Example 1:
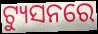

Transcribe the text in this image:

ଟ୍ୟୁସନରେ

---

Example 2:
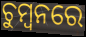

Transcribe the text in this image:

ଚୁମ୍ବନରେ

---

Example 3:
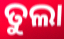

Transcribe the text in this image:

ତୁଲା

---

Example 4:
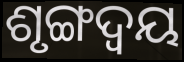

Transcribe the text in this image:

ଶୃଙ୍ଗଦ୍ୱୟ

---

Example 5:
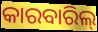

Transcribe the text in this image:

କାରବାରିଲ୍